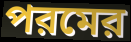
পরমের